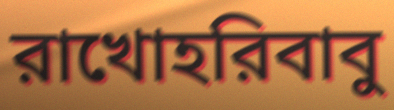
রাখোহরিবাবু